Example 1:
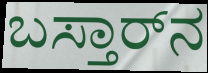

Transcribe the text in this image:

ಬಸ್ತಾರ್‌ನ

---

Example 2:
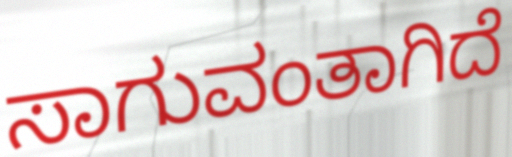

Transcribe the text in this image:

ಸಾಗುವಂತಾಗಿದೆ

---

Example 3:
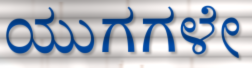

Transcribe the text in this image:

ಯುಗಗಳೇ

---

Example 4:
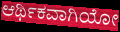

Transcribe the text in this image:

ಆರ್ಥಿಕವಾಗಿಯೋ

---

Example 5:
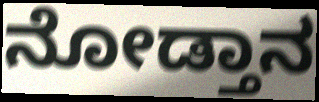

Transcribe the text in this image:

ನೋಡ್ತಾನ